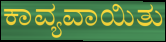
ಕಾವ್ಯವಾಯಿತು